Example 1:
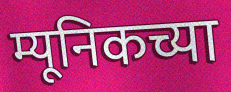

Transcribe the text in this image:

म्यूनिकच्या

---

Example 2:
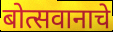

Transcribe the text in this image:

बोत्सवानाचे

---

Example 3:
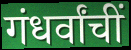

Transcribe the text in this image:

गंधर्वांचीं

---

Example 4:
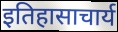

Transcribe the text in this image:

इतिहासाचार्य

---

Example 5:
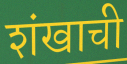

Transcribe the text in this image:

शंखाची